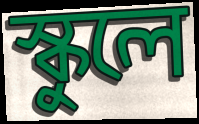
স্কুলে